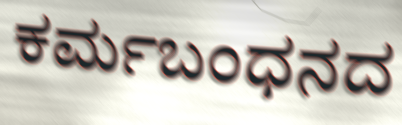
ಕರ್ಮಬಂಧನದ